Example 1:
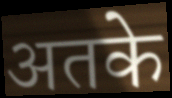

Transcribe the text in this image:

अतके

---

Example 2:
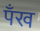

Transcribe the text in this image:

पँख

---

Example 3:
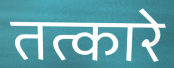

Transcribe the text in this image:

तत्कारे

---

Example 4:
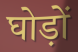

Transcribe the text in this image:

घोड़ों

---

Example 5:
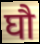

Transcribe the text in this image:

घौ